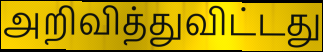
அறிவித்துவிட்டது